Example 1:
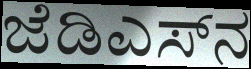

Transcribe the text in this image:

ಜೆಡಿಎಸ್‌ನ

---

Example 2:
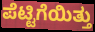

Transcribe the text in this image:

ಪೆಟ್ಟಿಗೆಯಿತ್ತು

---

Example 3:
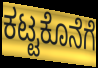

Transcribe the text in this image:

ಕಟ್ಟಕೊನೆಗೆ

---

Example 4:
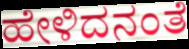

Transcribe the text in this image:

ಹೇಳಿದನಂತೆ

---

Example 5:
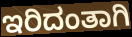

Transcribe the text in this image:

ಇರಿದಂತಾಗಿ